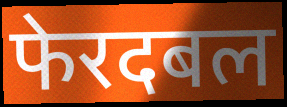
फेरदबल